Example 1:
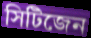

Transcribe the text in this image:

সিটিজেন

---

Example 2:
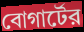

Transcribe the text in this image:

বোগার্টের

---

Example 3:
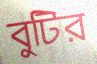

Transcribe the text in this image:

বুটির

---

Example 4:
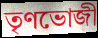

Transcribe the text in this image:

তৃণভোজী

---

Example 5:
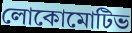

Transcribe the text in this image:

লোকোমোটিভ